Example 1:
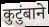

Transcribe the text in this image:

कुटुंबाने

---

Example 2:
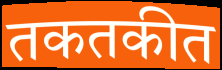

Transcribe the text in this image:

तकतकीत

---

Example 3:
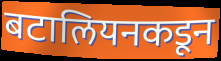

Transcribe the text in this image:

बटालियनकडून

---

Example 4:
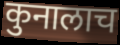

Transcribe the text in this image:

कुनालाच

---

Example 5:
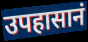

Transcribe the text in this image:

उपहासानं